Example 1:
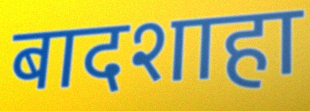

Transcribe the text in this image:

बादशाहा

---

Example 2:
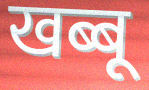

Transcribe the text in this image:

खब्‍बू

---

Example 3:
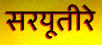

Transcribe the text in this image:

सरयूतीरे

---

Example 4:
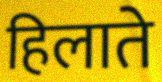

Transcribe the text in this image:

हिलाते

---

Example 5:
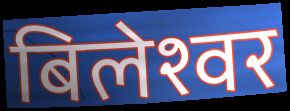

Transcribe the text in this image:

बिलेश्वर